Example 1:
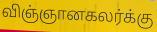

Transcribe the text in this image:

விஞ்ஞானகலர்க்கு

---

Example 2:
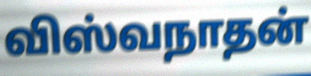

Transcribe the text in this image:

விஸ்வநாதன்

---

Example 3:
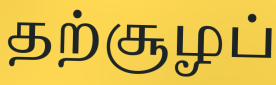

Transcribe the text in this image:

தற்சூழப்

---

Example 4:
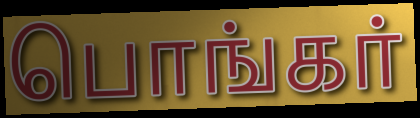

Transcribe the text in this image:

பொங்கர்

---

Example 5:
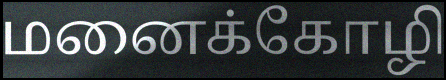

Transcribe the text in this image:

மனைக்கோழி